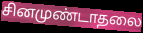
சினமுண்டாதலை